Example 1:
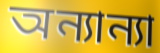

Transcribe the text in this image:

অন্যান্যা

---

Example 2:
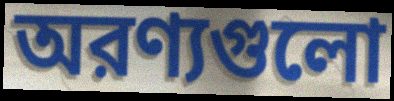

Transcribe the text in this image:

অরণ্যগুলো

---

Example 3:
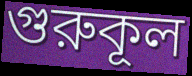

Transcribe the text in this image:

গুরুকূল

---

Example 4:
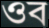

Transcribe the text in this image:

ওব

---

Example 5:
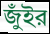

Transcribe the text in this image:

জুঁইর